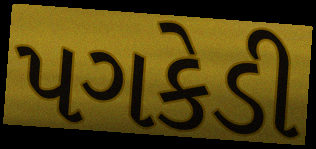
પગકેડી